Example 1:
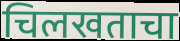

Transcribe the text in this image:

चिलखताचा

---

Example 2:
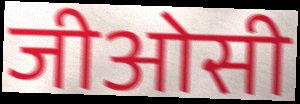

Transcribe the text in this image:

जीओसी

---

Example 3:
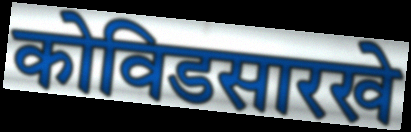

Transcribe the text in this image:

कोविडसारखे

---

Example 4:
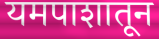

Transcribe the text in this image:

यमपाशातून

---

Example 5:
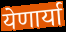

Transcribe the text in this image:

येणार्या